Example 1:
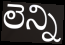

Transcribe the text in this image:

లెన్ని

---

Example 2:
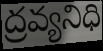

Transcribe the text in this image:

ద్రవ్యనిధి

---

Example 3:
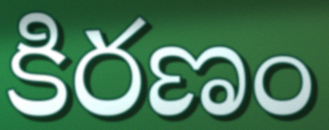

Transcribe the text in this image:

కిరణం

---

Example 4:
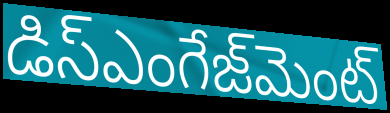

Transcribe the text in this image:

డిస్ఎంగేజ్‌మెంట్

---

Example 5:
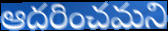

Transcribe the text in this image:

ఆదరించమని